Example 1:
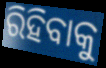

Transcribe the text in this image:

ରିହିବାକୁ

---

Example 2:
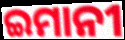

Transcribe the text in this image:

ଇମାନୀ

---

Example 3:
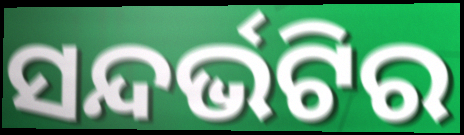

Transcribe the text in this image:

ସନ୍ଦର୍ଭଟିର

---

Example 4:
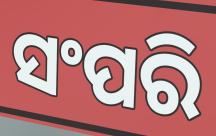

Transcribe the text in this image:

ସଂପରି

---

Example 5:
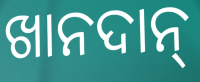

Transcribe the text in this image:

ଖାନଦାନ୍